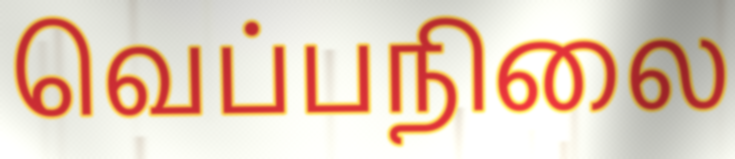
வெப்பநிலை